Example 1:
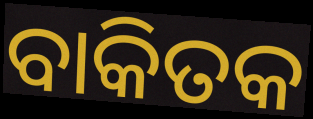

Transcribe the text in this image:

ବାକିତକ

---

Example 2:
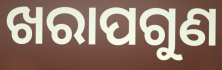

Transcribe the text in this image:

ଖରାପଗୁଣ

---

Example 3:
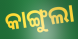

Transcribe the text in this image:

କାଙ୍ଗୁଲା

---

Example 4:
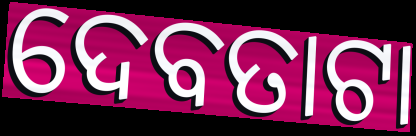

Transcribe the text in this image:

ଦେବତାଟା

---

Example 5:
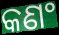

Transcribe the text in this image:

କଣଂ